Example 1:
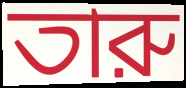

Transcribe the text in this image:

তাৰু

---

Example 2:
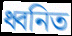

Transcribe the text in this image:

ধ্বনিত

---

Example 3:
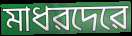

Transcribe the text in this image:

মাধৱদেৱে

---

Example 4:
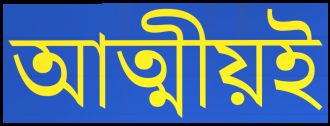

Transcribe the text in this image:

আত্মীয়ই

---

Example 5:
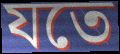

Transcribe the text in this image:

যতে